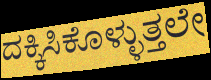
ದಕ್ಕಿಸಿಕೊಳ್ಳುತ್ತಲೇ